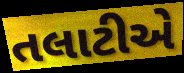
તલાટીએ